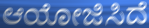
ಆಯೋಜಿಸಿದೆ